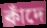
কাঁদে